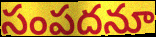
సంపదనూ